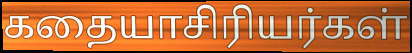
கதையாசிரியர்கள்